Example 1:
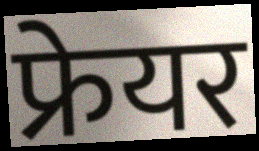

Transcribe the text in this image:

फ्रेयर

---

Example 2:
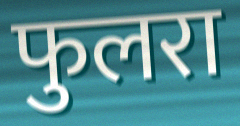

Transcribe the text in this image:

फुलरा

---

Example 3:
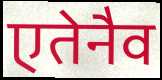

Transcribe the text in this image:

एतेनैव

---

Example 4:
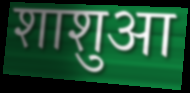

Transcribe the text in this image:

शाशुआ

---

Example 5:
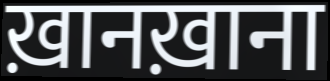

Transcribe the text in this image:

ख़ानख़ाना